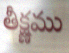
తీక్ష్ణము